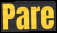
Pare